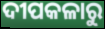
ଦୀପକଳାରୁ